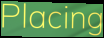
Placing